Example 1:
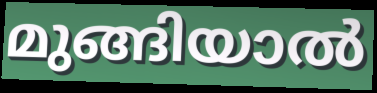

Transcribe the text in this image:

മുങ്ങിയാൽ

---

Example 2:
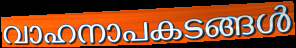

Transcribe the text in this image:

വാഹനാപകടങ്ങൾ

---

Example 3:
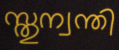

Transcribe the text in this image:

സ്തുന്വന്തി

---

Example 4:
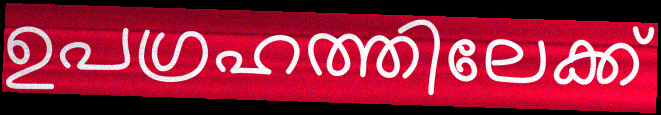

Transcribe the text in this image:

ഉപഗ്രഹത്തിലേക്ക്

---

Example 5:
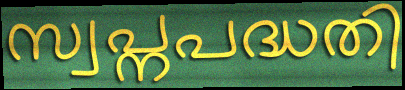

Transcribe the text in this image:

സ്വപ്നപദ്ധതി